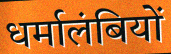
धर्मालंबियों